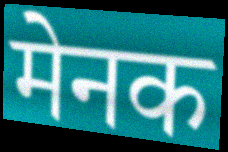
मेनक